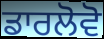
ਡਾਰਲੋਵੋ